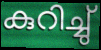
കുറിച്ചു്